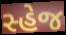
સ્હેજ